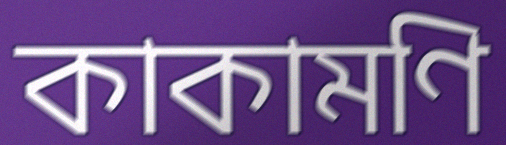
কাকামণি